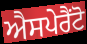
ਐਸਪੇਰੈਂਟੋ